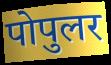
पोपुलर